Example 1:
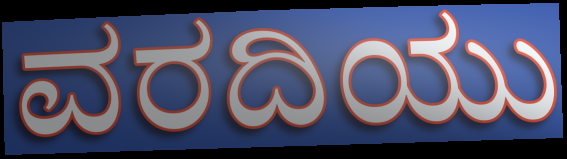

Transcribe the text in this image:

ವರದಿಯು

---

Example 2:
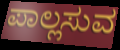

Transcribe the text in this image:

ಪಾಲ್ಲಸುವ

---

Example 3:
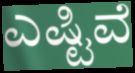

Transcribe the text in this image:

ಎಷ್ಟಿವೆ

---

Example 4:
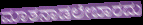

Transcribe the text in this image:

ಮಾತನಾಡಲೇಬಾರದು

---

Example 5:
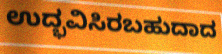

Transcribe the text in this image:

ಉದ್ಭವಿಸಿರಬಹುದಾದ